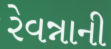
રેવન્નાની